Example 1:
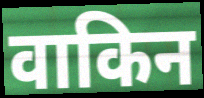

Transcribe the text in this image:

वाकिन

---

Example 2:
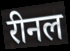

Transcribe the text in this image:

रीनल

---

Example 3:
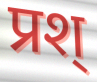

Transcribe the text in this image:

प्रश्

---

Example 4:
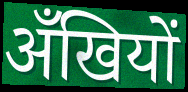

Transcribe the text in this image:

अँखियों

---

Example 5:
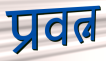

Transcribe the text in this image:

प्रवत्न